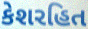
કેશરહિત